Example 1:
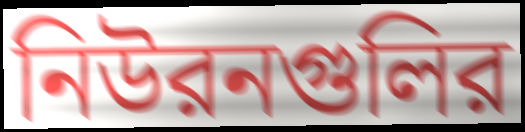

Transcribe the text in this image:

নিউরনগুলির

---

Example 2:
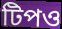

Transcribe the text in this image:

টিপও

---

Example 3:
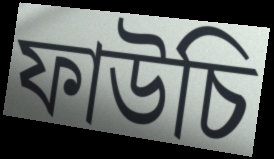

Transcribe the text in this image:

ফাউচি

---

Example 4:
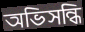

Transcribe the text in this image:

অভিসন্ধি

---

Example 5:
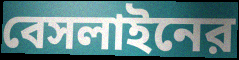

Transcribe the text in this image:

বেসলাইনের